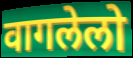
वागलेलो